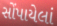
સોંપાયેલાં